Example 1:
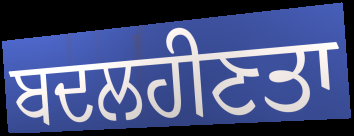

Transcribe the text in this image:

ਬਦਲਹੀਣਤਾ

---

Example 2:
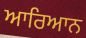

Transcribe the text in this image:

ਆਰਿਆਨ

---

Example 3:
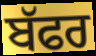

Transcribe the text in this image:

ਬੱਫਰ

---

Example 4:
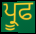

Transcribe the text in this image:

ਪ੍ਰੂਫ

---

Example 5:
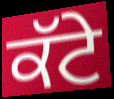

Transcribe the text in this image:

ਕੱਟੇ